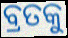
ବ୍ରତକୁ